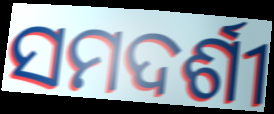
ସମଦର୍ଶୀ